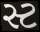
સ્ટ